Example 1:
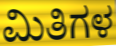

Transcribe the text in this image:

ಮಿತಿಗಳ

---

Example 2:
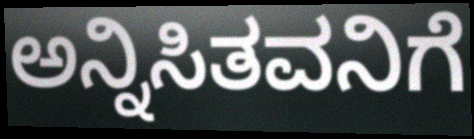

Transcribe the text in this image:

ಅನ್ನಿಸಿತವನಿಗೆ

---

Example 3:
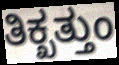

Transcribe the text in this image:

ತಿಕ್ಖತ್ತುಂ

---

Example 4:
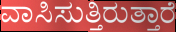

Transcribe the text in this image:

ವಾಸಿಸುತ್ತಿರುತ್ತಾರೆ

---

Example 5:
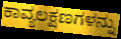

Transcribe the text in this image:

ಕಾವ್ಯಲಕ್ಷಣಗಳನ್ನು